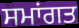
ਸਮਾਂਗਤ